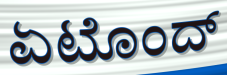
ಏಟೊಂದ್